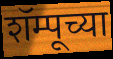
शॅम्पूच्या